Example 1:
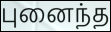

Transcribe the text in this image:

புனைந்த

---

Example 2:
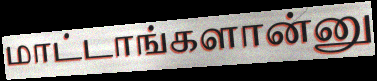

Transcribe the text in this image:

மாட்டாங்களான்னு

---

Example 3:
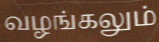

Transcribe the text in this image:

வழங்கலும்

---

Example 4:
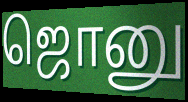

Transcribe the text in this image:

ஜொனு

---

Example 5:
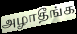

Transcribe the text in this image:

அழாதீங்க